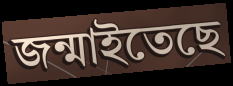
জন্মাইতেছে